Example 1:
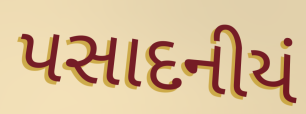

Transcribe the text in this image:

પસાદનીયં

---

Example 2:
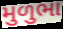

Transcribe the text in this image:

મુળુભા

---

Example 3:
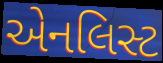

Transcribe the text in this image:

એનલિસ્ટ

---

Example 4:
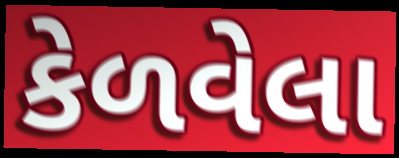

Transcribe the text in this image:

કેળવેલા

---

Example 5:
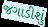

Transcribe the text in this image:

જગાડીશું